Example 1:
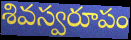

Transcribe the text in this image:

శివస్వరూపం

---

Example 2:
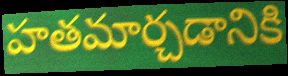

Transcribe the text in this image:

హతమార్చడానికి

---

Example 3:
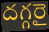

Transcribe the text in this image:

దగ్గరై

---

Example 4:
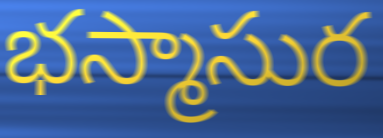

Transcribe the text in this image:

భస్మాసుర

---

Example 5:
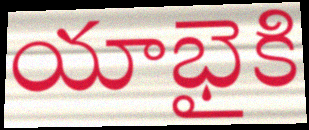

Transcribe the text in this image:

యాభైకి